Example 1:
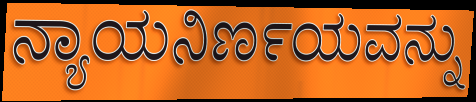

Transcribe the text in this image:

ನ್ಯಾಯನಿರ್ಣಯವನ್ನು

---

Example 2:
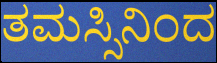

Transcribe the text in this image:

ತಮಸ್ಸಿನಿಂದ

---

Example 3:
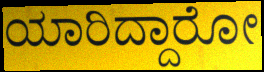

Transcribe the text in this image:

ಯಾರಿದ್ದಾರೋ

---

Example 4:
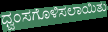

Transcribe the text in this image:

ಧ್ವಂಸಗೊಳಿಸಲಾಯಿತು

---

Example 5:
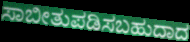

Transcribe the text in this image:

ಸಾಬೀತುಪಡಿಸಬಹುದಾದ